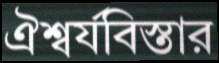
ঐশ্বর্যবিস্তার